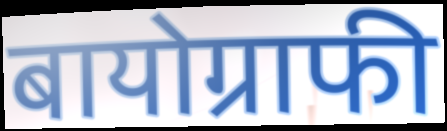
बायोग्राफी